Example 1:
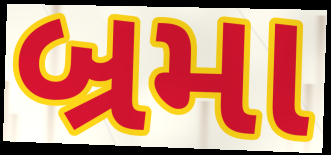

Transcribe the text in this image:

બ્રમા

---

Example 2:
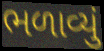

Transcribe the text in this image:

ભળાવ્યું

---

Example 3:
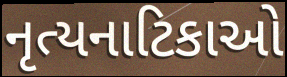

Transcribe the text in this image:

નૃત્યનાટિકાઓ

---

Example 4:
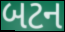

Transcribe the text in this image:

બટન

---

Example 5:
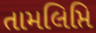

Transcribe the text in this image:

તામલિપ્તિ